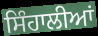
ਸਿੰਹਾਲੀਆਂ